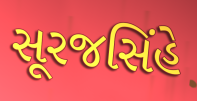
સૂરજસિંહે